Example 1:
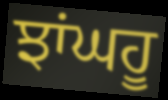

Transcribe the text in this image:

ਝਾਂਘਹੂ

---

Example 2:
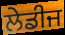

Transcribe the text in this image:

ਲੇਡੀਜ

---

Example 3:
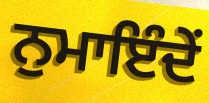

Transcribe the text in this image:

ਨੁਮਾਇੰਦੇਂ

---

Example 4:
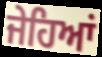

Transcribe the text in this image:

ਜੇਹਿਆਂ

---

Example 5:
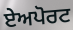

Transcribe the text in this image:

ਏਅਪੋਰਟ